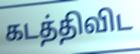
கடத்திவிட